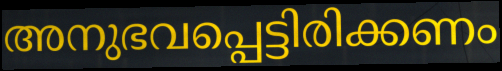
അനുഭവപ്പെട്ടിരിക്കണം